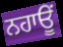
ਨਹਾਊਂ